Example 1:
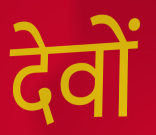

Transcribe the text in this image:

देवों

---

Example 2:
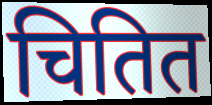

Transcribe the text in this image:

चितित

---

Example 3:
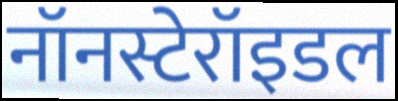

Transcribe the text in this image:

नॉनस्टेरॉइडल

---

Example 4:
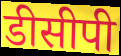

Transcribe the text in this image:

डीसीपी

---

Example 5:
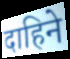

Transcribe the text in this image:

दाहिने